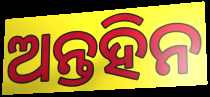
ଅନ୍ତହିନ